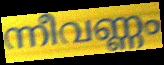
ന്നീവണ്ണം